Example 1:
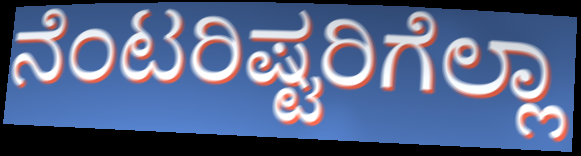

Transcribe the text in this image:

ನೆಂಟರಿಷ್ಟರಿಗೆಲ್ಲಾ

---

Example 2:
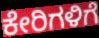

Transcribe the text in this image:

ಕೇರಿಗಳಿಗೆ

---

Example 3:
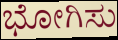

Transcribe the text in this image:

ಭೋಗಿಸು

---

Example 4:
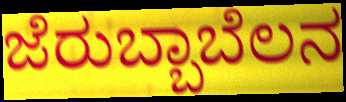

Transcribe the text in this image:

ಜೆರುಬ್ಬಾಬೆಲನ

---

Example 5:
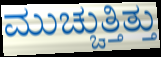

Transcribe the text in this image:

ಮುಚ್ಚುತ್ತಿತ್ತು